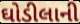
ઘોડીલાની